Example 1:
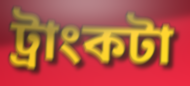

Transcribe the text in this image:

ট্রাংকটা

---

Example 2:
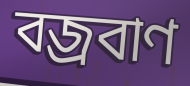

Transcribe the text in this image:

বজ্রবাণ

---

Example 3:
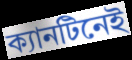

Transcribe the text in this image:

ক্যানটিনেই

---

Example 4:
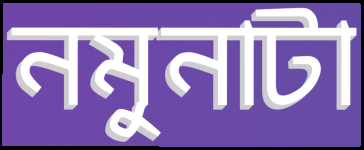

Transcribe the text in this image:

নমুনাটা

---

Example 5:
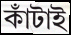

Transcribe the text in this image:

কাঁটাই